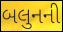
બલુનની